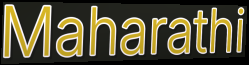
Maharathi